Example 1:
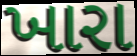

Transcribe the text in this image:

ખારા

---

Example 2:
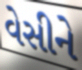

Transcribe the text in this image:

વેસીને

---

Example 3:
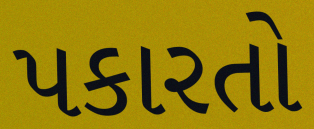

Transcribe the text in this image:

પકારતો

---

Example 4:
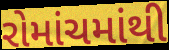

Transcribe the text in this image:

રોમાંચમાંથી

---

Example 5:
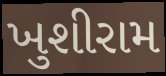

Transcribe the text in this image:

ખુશીરામ